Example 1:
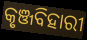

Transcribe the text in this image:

କୃଞ୍ଜବିହାରୀ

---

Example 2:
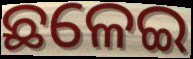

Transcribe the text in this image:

ଛଳେଇ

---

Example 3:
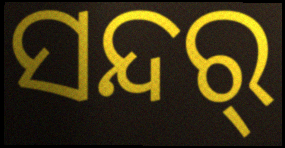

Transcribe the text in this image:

ସନ୍ଦର୍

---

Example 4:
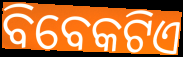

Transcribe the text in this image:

ବିବେକଟିଏ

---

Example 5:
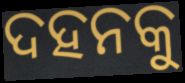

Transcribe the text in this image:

ଦହନକୁ